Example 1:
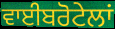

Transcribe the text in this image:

ਵਾਈਬਰੋਟੇਲਾਂ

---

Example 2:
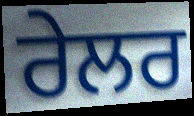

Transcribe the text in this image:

ਰੇਲਰ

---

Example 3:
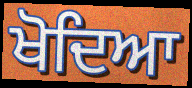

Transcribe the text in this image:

ਖੋਦਿਆ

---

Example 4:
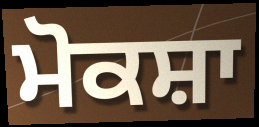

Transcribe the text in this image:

ਮੋਕਸ਼ਾ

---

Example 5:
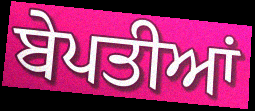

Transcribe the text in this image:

ਬੇਪਤੀਆਂ